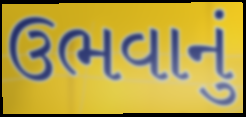
ઉભવાનું